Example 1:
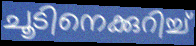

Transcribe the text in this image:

ചൂടിനെക്കുറിച്ച്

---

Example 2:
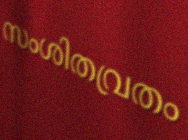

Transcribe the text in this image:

സംശിതവ്രതം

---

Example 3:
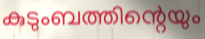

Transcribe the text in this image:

കുടുംബത്തിന്റെയും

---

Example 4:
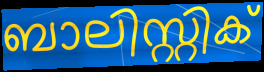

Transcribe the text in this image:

ബാലിസ്റ്റിക്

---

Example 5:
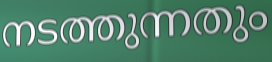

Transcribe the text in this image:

നടത്തുന്നതും